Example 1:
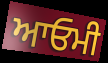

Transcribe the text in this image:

ਆਓਮੀ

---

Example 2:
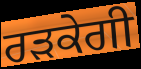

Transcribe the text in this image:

ਰੜਕੇਗੀ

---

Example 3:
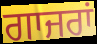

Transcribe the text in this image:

ਗਾਜਰਾਂ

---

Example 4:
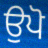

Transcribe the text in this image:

ਉਪੋ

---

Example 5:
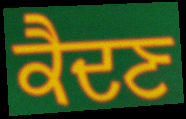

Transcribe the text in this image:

ਕੈਦਣ